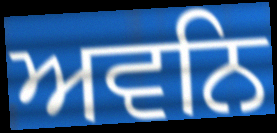
ਅਵਨਿ